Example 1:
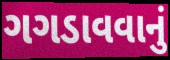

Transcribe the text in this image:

ગગડાવવાનું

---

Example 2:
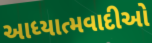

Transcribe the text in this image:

આધ્યાત્મવાદીઓ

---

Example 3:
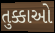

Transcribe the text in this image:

તુક્કાઓ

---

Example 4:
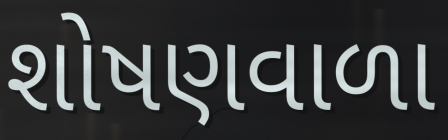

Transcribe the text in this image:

શોષણવાળા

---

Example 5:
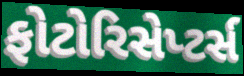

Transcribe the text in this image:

ફોટોરિસેપ્ટર્સ